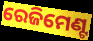
ରେଜିମେଣ୍ଟ